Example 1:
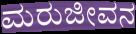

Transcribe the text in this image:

ಮರುಜೀವನ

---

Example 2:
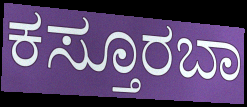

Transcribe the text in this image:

ಕಸ್ತೂರಬಾ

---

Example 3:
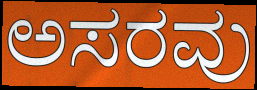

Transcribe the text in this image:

ಅಸರವು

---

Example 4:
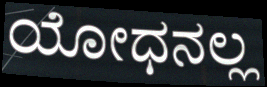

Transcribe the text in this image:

ಯೋಧನಲ್ಲ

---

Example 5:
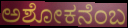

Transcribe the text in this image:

ಅಶೋಕನೆಂಬ